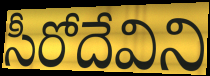
సీరోదేవిని